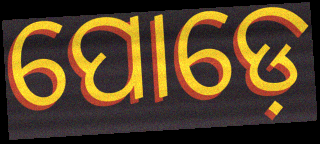
ପୋଡ଼େ